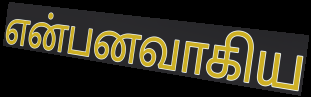
என்பனவாகிய